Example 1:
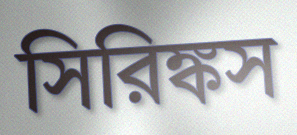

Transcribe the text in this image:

সিরিঙ্কস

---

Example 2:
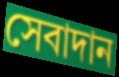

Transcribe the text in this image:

সেবাদান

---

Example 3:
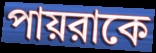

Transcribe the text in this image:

পায়রাকে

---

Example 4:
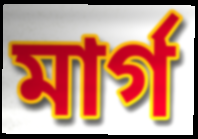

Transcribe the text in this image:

মার্গ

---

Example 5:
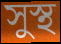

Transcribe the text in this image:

সুস্থ